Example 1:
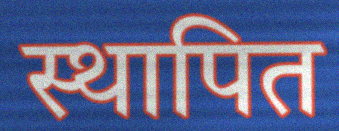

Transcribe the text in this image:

स्थापित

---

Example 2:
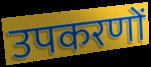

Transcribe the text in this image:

उपकरणों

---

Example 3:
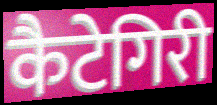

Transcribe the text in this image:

कैटेगिरी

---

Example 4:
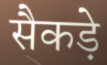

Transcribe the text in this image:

सैकड़े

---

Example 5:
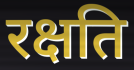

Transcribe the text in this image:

रक्षति